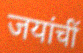
जयांचीं